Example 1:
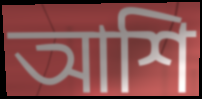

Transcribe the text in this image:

আশি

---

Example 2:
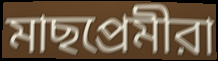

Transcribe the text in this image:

মাছপ্রেমীরা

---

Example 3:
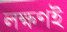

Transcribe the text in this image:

লক্ষণই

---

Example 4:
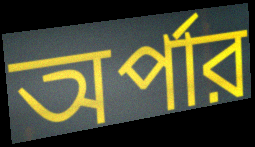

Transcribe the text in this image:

অর্পার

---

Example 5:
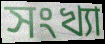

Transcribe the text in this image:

সংখ্যা